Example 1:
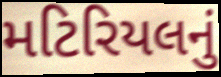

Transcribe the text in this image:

મટિરિયલનું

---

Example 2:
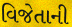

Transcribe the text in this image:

વિજેતાની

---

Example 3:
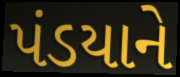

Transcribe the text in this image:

પંડયાને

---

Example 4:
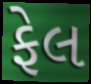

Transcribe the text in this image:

ફેલ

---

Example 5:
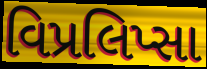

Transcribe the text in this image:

વિપ્રલિપ્સા